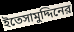
ইতেসামুদ্দিনের